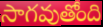
సాగవుతోంది